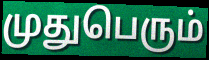
முதுபெரும்